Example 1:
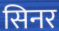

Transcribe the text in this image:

सिनर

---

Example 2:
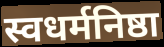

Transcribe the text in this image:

स्वधर्मनिष्ठा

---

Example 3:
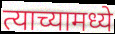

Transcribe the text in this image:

त्याच्यामध्ये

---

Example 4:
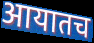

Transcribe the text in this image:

आयातच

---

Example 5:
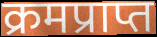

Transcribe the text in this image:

क्रमप्राप्‍त